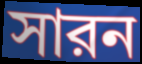
সারন